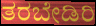
ತರಬೇಡಿರಿ